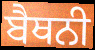
ਬੈਥਨੀ